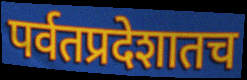
पर्वतप्रदेशातच